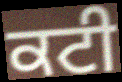
ਕਟੀ